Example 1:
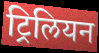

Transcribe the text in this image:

ट्रिलियन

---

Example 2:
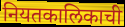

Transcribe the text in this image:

नियतकालिकाची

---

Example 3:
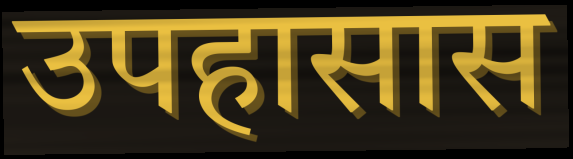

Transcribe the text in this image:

उपहासास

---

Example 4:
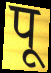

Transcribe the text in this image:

पू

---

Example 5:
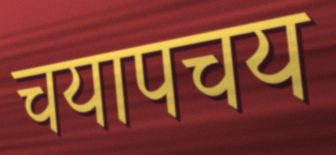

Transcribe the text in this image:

चयापचय